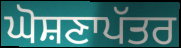
ਘੋਸ਼ਣਾਪੱਤਰ